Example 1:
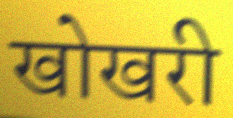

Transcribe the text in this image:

खोखरी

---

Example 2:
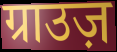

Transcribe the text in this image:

ग्राउज़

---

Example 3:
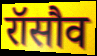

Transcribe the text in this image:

रॉसौव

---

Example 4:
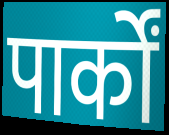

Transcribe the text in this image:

पार्कों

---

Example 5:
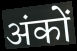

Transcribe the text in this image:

अंकों